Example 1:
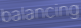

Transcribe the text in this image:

balancing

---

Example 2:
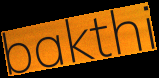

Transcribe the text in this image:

bakthi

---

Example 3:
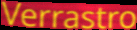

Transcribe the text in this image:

Verrastro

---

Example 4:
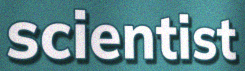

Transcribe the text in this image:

scientist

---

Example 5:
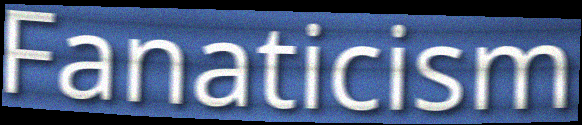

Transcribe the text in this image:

Fanaticism